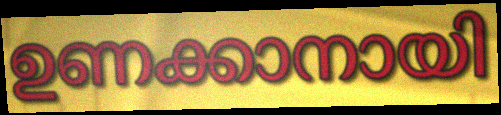
ഉണക്കാനായി